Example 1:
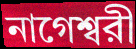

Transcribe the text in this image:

নাগেশ্বরী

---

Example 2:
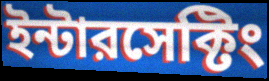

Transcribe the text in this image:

ইন্টারসেক্টিং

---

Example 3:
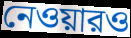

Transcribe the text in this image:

নেওয়ারও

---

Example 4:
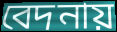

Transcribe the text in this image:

বেদনায়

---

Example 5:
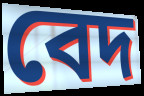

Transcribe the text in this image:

বেদ